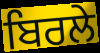
ਬਿਰਲੇ